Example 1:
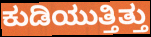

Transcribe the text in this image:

ಕುಡಿಯುತ್ತಿತ್ತು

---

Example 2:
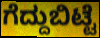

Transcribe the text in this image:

ಗೆದ್ದುಬಿಟ್ಟೆ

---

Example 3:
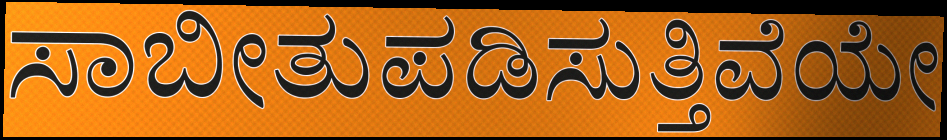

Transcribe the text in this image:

ಸಾಬೀತುಪಡಿಸುತ್ತಿವೆಯೇ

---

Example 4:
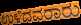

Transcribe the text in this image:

ಉಳಿದವರಾರು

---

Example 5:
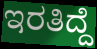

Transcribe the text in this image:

ಇರತಿದ್ದೆ